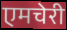
एमचेरी